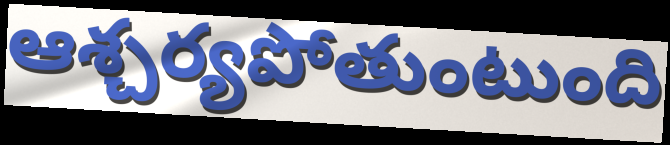
ఆశ్చర్యపోతుంటుంది